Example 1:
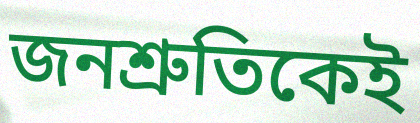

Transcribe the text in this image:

জনশ্রুতিকেই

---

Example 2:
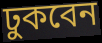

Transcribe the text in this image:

ঢুকবেন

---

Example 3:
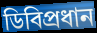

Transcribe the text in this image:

ডিবিপ্রধান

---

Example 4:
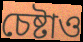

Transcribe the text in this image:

চেষ্টাও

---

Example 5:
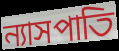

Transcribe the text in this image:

ন্যাসপাতি